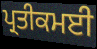
ਪ੍ਰਤੀਕਮਈ